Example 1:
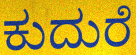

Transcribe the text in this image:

ಕುದುರೆ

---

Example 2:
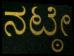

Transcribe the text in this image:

ನಟ್ಠೇ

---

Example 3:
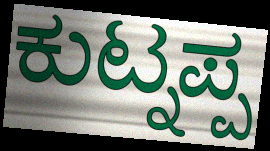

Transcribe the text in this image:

ಕುಟ್ನಪ್ಪ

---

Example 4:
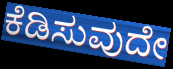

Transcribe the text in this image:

ಕೆಡಿಸುವುದೇ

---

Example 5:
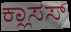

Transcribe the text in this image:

ಕ್ಲಾಸಸ್